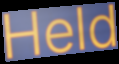
Held